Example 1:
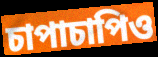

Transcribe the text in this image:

চাপাচাপিও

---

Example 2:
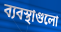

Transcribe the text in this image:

ব্যবস্থাগুলো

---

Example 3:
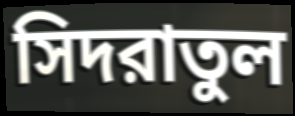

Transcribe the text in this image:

সিদরাতুল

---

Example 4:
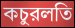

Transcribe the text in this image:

কচুরলতি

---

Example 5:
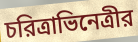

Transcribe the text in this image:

চরিত্রাভিনেত্রীর